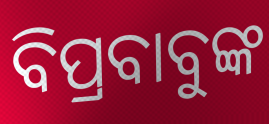
ବିପ୍ରବାବୁଙ୍କ